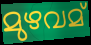
മുഴവമ്